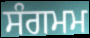
ਸੰਗਮਮ